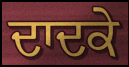
ਦਾਦਕੇ